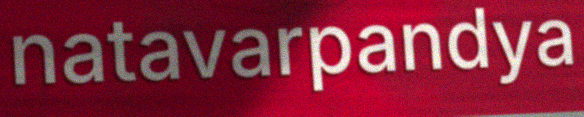
natavarpandya